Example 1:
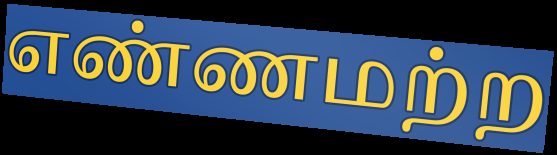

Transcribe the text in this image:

எண்ணமற்ற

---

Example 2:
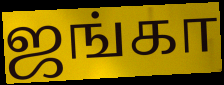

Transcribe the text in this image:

ஜங்கா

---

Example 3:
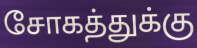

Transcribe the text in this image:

சோகத்துக்கு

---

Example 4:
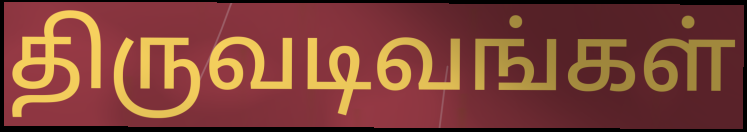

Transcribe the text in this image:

திருவடிவங்கள்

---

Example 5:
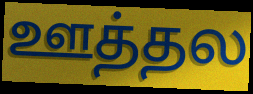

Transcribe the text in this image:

ஊத்தல